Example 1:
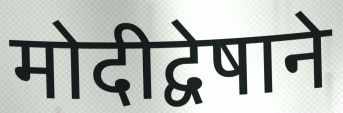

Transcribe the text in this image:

मोदीद्वेषाने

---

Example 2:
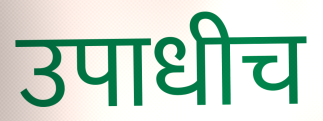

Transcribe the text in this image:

उपाधीच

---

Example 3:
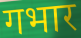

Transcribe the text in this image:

गभार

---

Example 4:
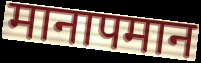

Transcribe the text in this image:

मानापमान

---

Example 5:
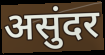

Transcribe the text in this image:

असुंदर